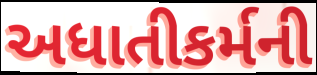
અધાતીકર્મની